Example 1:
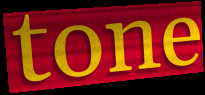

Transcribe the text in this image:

tone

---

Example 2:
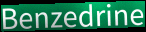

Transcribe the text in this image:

Benzedrine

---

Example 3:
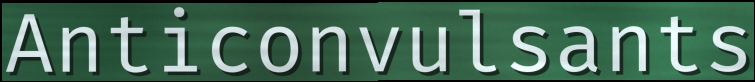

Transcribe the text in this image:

Anticonvulsants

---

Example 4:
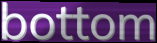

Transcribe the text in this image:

bottom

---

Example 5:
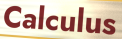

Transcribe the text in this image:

Calculus